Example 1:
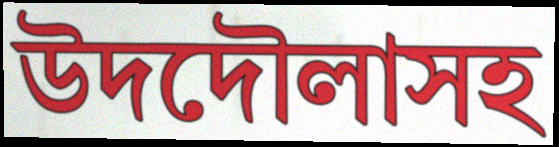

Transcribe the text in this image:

উদদৌলাসহ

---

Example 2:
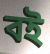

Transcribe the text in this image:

বই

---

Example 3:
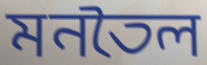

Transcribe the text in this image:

মনতৈল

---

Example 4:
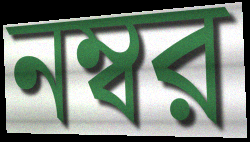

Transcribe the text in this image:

নম্বর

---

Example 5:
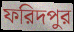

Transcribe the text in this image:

ফরিদপুর